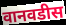
वानवडीस